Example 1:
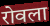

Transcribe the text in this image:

रोवला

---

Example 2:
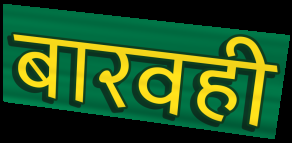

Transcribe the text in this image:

बारवही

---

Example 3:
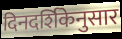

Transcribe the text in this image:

दिनदर्शिकेनुसार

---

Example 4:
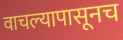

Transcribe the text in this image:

वाचल्यापासूनच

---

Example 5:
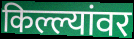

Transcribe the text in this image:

किल्ल्यांवर